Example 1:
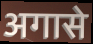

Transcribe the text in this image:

अगासे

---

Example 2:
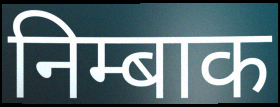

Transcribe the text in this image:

निम्बाक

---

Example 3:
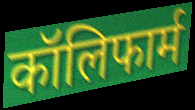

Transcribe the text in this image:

कॉलिफार्म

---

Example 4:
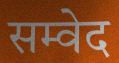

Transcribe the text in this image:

सम्वेद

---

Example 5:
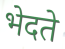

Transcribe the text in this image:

भेदते